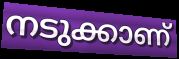
നടുക്കാണ്